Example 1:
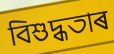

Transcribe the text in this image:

বিশুদ্ধতাৰ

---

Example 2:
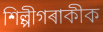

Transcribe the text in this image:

শিল্পীগৰাকীক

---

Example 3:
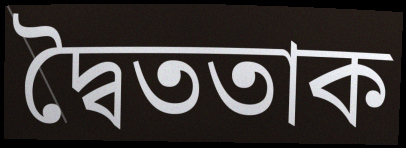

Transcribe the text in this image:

দ্বৈততাক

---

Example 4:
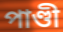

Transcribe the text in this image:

পাণ্ডী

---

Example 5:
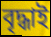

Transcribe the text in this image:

বৃদ্ধাই